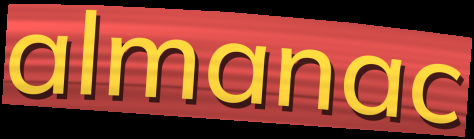
almanac